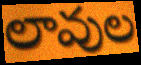
లావుల